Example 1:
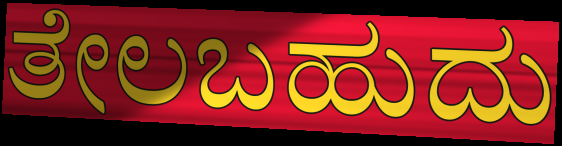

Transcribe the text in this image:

ತೇಲಬಹುದು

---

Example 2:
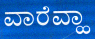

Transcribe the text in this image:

ವಾರೆವ್ಹಾ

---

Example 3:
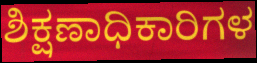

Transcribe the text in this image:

ಶಿಕ್ಷಣಾಧಿಕಾರಿಗಳ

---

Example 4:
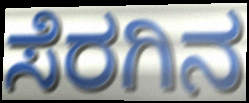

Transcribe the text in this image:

ಸೆರಗಿನ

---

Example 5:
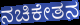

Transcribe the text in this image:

ನಚಿಕೇತನ